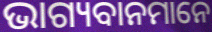
ଭାଗ୍ୟବାନମାନେ